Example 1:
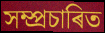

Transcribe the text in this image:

সম্প্ৰচাৰিত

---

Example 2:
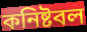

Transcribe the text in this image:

কনিষ্টবল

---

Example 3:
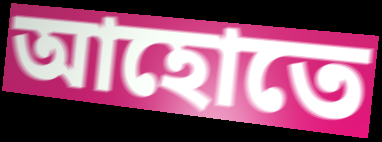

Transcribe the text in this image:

আহোতে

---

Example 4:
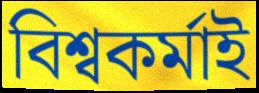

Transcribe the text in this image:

বিশ্বকৰ্মাই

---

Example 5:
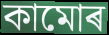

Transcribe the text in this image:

কামোৰ